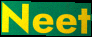
Neet